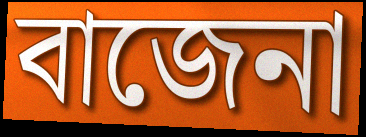
বাজেনা